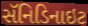
સૅનિડિનાઇટ